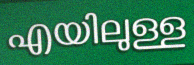
എയിലുള്ള